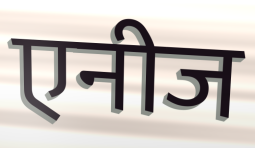
एनीज